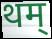
थम्